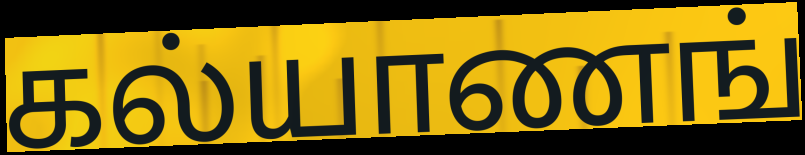
கல்யாணங்